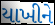
યાખીને